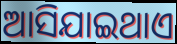
ଆସିଯାଇଥାଏ